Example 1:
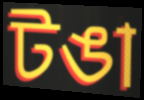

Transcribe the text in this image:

টঙা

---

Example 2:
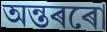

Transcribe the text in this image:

অন্তৰৰো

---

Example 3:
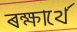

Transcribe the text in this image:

ৰক্ষাৰ্থে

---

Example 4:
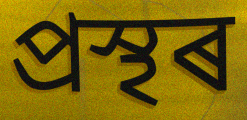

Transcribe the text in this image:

প্ৰস্থৰ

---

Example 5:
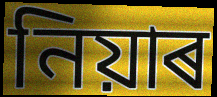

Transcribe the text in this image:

নিয়াৰ